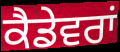
ਕੈਡੇਵਰਾਂ